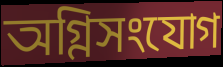
অগ্নিসংযোগ